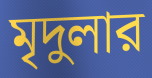
মৃদুলার